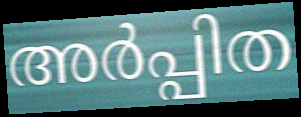
അർപ്പിത